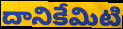
దానికేమిటి